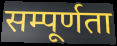
सम्पूर्णता